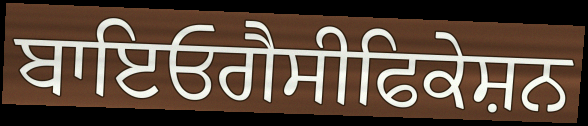
ਬਾਇਓਗੈਸੀਫਿਕੇਸ਼ਨ